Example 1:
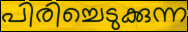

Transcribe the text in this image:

പിരിച്ചെടുക്കുന്ന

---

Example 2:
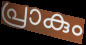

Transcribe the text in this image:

പ്രാകും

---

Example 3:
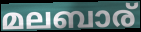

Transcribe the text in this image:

മലബാര്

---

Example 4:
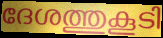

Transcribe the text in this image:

ദേശത്തുകൂടി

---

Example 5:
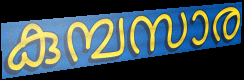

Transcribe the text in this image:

കുമ്പസാര